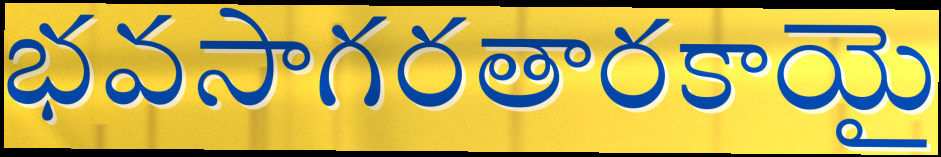
భవసాగరతారకాయై